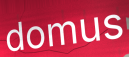
domus